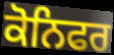
ਕੋਨਿਫਰ